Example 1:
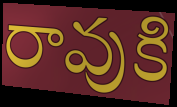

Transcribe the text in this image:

రావుకి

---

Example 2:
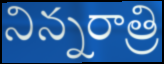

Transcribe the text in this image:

నిన్నరాత్రి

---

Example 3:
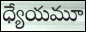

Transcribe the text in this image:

ధ్యేయమూ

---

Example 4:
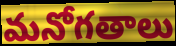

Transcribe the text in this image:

మనోగతాలు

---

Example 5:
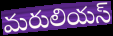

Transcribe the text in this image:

మరులియస్